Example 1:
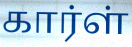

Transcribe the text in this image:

கார்ள்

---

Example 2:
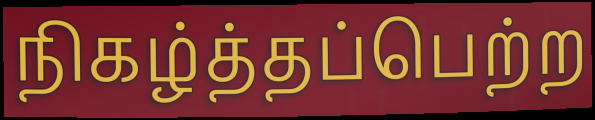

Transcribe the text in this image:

நிகழ்த்தப்பெற்ற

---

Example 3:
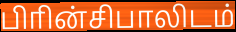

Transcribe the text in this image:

பிரின்சிபாலிடம்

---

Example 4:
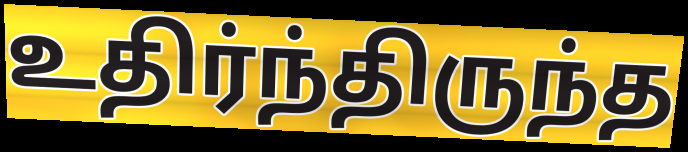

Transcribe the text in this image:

உதிர்ந்திருந்த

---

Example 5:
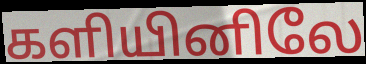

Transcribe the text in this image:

களியினிலே